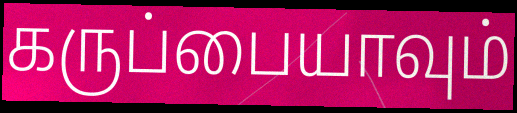
கருப்பையாவும்